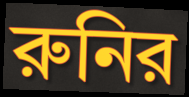
রুনির